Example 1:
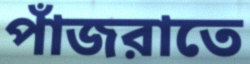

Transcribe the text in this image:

পাঁজরাতে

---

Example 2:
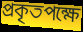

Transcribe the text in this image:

প্রকৃতপক্ষে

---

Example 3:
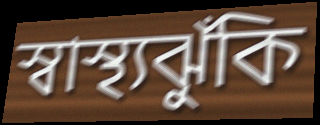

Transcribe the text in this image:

স্বাস্থ্যঝুঁকি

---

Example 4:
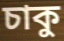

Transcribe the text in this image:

চাকু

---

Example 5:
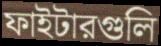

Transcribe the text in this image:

ফাইটারগুলি